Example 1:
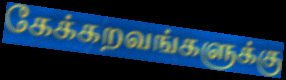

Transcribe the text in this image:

கேக்கறவங்களுக்கு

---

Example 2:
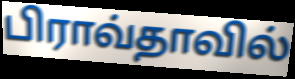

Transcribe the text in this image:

பிராவ்தாவில்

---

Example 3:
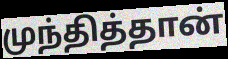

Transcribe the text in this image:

முந்தித்தான்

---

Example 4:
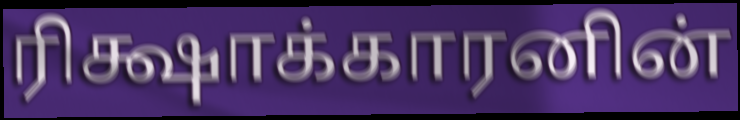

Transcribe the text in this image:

ரிக்ஷாக்காரனின்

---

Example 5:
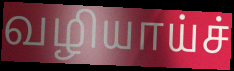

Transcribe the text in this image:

வழியாய்ச்